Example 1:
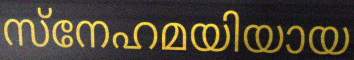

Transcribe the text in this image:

സ്നേഹമയിയായ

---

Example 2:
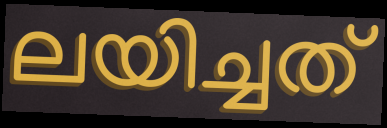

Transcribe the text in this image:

ലയിച്ചത്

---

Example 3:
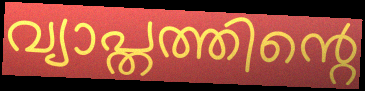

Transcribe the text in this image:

വ്യാപ്തത്തിന്റെ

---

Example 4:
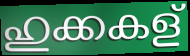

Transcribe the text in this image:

ഹുക്കകള്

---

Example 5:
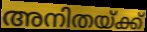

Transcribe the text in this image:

അനിതയ്ക്ക്